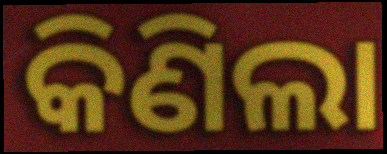
କିଣିଲା